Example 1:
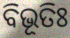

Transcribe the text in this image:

ବିଭୂତିଃ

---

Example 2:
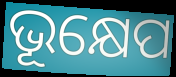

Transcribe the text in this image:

ଭୂକ୍ଷେପ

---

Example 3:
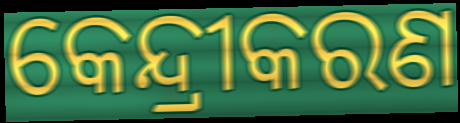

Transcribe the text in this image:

କେନ୍ଦ୍ରୀକରଣ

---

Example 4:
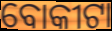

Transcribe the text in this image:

ବୋକୀଟା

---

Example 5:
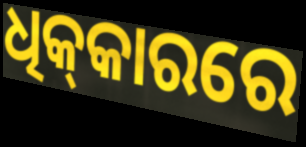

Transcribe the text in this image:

ଧିକ୍‌କାରରେ